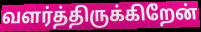
வளர்த்திருக்கிறேன்